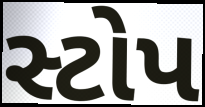
સ્ટોપ